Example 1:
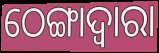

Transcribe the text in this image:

ଠେଙ୍ଗାଦ୍ୱାରା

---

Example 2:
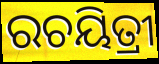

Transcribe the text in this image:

ରଚୟିତ୍ରୀ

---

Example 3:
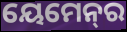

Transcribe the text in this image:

ୟେମେନ୍‌ର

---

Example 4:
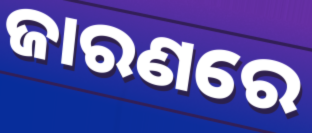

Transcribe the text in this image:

ଜାରଣରେ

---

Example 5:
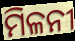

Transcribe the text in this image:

ମିଳନୀ